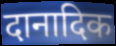
दानादिक